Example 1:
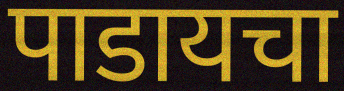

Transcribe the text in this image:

पाडायचा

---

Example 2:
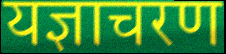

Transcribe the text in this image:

यज्ञाचरण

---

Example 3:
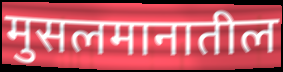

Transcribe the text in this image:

मुसलमानातील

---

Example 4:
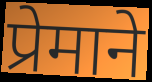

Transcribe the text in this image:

प्रेमाने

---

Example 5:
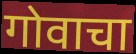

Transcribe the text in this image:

गोवाचा